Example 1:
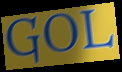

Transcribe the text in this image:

GOL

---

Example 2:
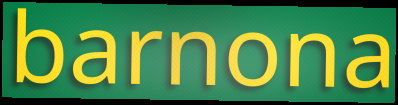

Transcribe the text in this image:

barnona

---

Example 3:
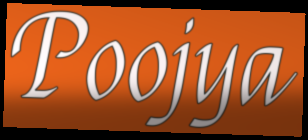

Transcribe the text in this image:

Poojya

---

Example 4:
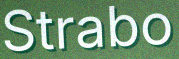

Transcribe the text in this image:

Strabo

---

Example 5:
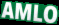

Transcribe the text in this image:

AMLO